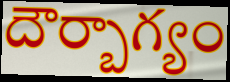
దౌర్బాగ్యం